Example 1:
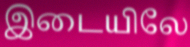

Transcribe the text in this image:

இடையிலே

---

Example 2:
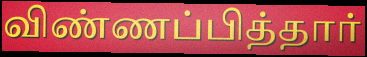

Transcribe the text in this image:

விண்ணப்பித்தார்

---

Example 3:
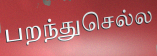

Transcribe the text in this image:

பறந்துசெல்ல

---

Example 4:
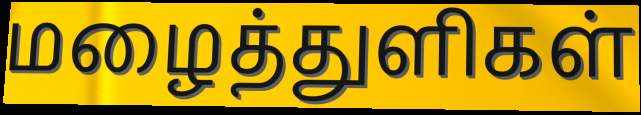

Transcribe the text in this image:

மழைத்துளிகள்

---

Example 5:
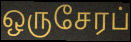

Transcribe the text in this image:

ஒருசேரப்